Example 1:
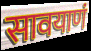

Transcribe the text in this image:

सावयाणं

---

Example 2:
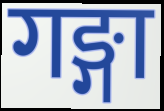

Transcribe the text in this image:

गङ्गा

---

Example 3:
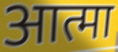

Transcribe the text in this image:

आत्मा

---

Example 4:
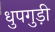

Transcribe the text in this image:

धुपगुड़ी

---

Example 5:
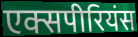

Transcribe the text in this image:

एक्सपीरियंस